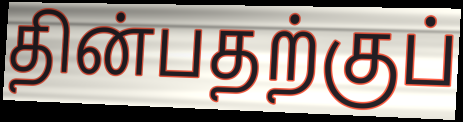
தின்பதற்குப்